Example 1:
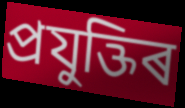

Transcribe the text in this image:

প্ৰযুক্তিৰ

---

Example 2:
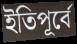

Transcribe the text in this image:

ইতিপূৰ্বে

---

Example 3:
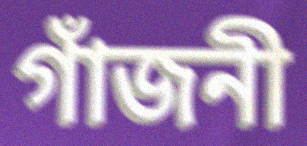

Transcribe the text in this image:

গাঁজনী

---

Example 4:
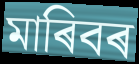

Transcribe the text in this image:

মাৰিবৰ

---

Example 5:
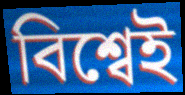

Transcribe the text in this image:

বিশ্বেই